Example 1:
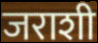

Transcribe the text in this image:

जराशी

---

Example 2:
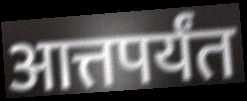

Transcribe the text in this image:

आत्तपर्यंत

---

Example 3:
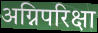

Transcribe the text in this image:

अग्निपरिक्षा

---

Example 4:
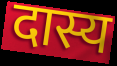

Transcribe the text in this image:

दास्य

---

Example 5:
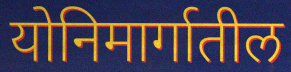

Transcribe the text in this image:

योनिमार्गातील